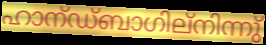
ഹാന്ഡ്ബാഗില്നിന്നു്